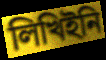
লিখিইনি